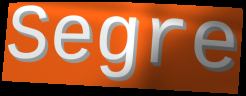
Segre